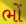
ભોં